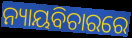
ନ୍ୟାୟବିଚାରରେ